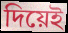
দিয়েই